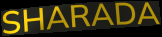
SHARADA